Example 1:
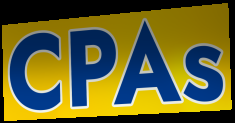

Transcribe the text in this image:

CPAs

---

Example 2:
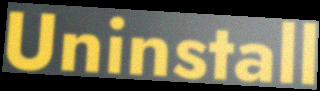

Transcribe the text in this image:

Uninstall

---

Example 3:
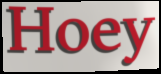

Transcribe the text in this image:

Hoey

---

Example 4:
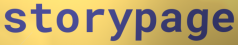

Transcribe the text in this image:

storypage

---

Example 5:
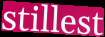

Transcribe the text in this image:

stillest